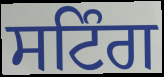
ਸਟਿੰਗ